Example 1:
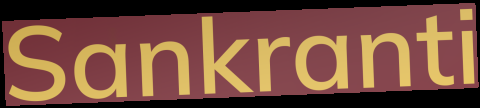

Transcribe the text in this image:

Sankranti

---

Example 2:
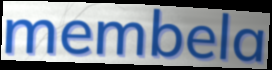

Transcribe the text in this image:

membela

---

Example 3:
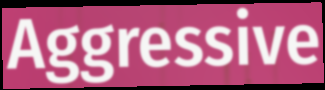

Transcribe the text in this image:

Aggressive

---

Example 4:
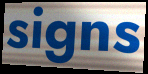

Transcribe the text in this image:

signs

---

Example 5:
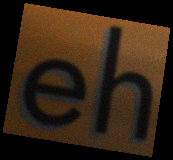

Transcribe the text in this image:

eh